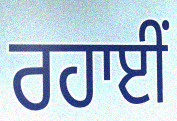
ਰਹਾਈਂ